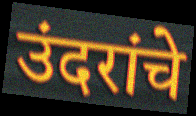
उंदरांचे